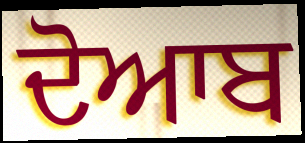
ਦੋਆਬ